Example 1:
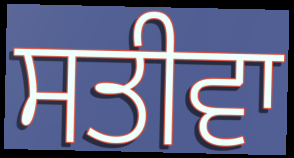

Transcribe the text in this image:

ਸਤੀਵਾ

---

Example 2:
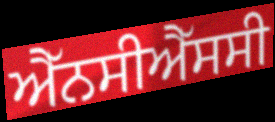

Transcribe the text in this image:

ਐੱਨਸੀਐੱਸਸੀ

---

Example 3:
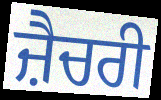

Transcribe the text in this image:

ਜ਼ੈਚਰੀ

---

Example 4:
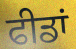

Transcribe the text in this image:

ਫੀਡਾਂ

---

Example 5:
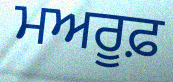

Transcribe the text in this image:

ਮਅਰੂਫ਼